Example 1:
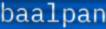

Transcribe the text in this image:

baalpan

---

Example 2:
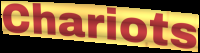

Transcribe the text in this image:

Chariots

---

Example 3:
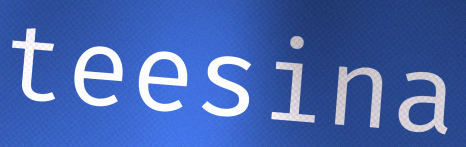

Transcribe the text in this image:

teesina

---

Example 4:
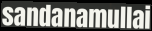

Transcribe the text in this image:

sandanamullai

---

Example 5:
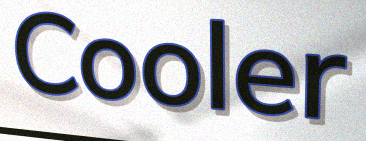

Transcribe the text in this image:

Cooler